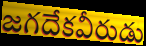
జగదేకవీరుడు